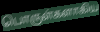
பொருள்களாகிய